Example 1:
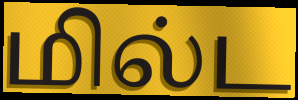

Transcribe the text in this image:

மில்ட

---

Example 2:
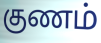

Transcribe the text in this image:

குணம்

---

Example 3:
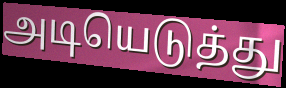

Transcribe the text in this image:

அடியெடுத்து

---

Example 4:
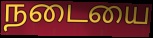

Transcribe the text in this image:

நடையை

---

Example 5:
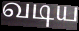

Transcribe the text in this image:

வடிய